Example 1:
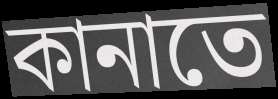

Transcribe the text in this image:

কানাতে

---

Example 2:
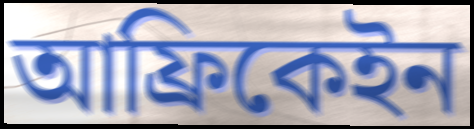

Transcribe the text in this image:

আফ্রিকেইন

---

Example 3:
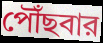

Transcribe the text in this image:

পৌঁছবার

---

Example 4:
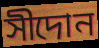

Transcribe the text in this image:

সীদোন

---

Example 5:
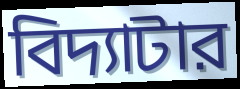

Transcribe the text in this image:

বিদ্যাটার